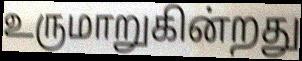
உருமாறுகின்றது